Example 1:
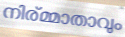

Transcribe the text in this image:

നിര്മ്മാതാവും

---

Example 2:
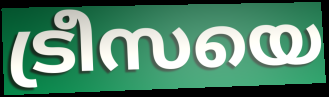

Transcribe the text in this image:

ട്രീസയെ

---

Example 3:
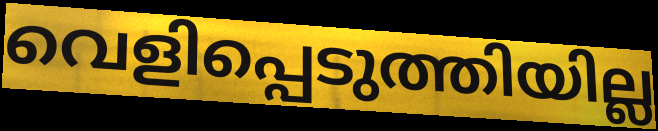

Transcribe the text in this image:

വെളിപ്പെടുത്തിയില്ല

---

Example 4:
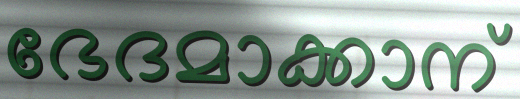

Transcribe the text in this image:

ഭേദമാക്കാന്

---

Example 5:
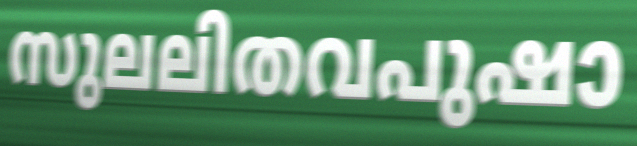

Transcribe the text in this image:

സുലലിതവപുഷാ